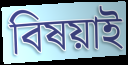
বিষয়াই